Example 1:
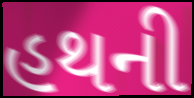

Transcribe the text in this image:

હથની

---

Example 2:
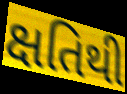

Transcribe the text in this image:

ક્ષતિથી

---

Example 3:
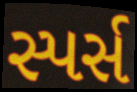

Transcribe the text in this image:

સ્પર્સ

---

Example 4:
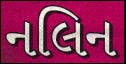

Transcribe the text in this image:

નલિન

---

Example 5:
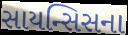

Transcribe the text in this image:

સાયન્સિસના